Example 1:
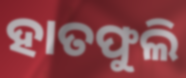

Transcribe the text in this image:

ହାତଫୁଲି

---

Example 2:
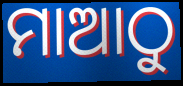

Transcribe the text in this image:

ମାଆଠୁ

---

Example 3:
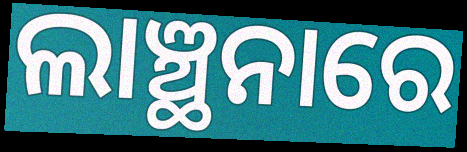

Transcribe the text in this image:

ଲାଞ୍ଛନାରେ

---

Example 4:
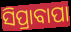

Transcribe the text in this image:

ସିପ୍ରାବାପା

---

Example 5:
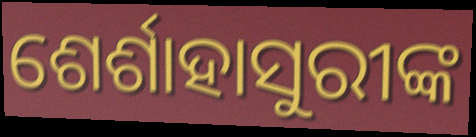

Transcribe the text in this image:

ଶେର୍ଶାହାସୁରୀଙ୍କ